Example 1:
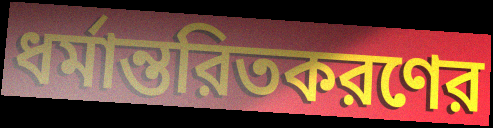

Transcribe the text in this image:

ধর্মান্তরিতকরণের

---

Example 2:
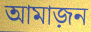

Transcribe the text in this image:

আমাজ়ন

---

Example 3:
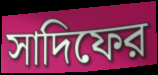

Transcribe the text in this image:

সাদিফের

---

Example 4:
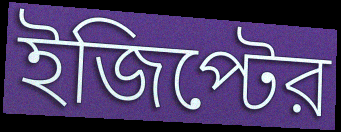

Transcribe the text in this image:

ইজিপ্টের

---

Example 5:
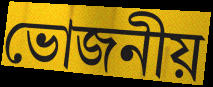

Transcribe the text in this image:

ভোজনীয়